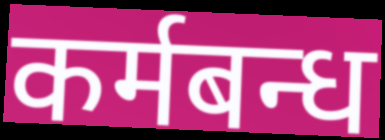
कर्मबन्ध